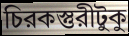
চিরকস্তুরীটুকু